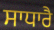
ਸਾਧਾਰੈ